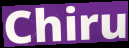
Chiru